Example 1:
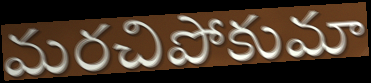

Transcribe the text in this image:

మరచిపోకుమా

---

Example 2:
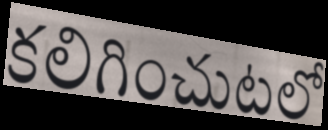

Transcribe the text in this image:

కలిగించుటలో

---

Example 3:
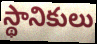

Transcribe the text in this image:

స్థానికులు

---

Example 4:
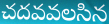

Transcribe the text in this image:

చదవవలసిన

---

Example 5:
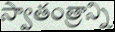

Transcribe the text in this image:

స్వాతంత్రాన్ని